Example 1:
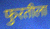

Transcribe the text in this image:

फुरतीला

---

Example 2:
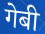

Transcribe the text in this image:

गेबी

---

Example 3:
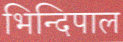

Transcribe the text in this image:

भिन्दिपाल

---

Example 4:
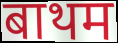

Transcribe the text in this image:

बाथम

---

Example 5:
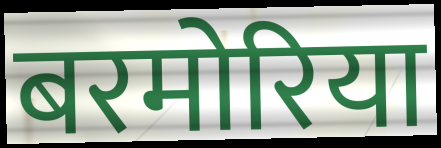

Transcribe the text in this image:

बरमोरिया